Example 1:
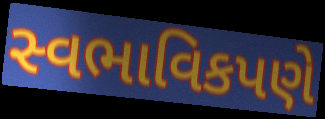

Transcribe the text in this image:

સ્વભાવિકપણે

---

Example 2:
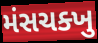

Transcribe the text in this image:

મંસચક્ખુ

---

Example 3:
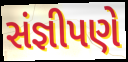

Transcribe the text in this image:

સંજ્ઞીપણે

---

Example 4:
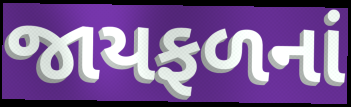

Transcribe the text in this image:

જાયફળનાં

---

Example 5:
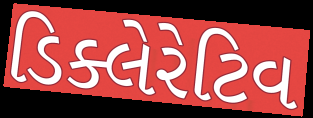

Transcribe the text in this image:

ડિક્લેરેટિવ